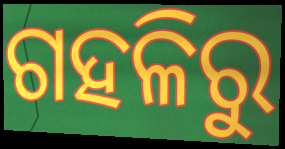
ଗହଳିରୁ